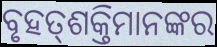
ବୃହତ୍‍ଶକ୍ତିମାନଙ୍କର